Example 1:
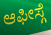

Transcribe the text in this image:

ಆಫೀಸ್ಗೆ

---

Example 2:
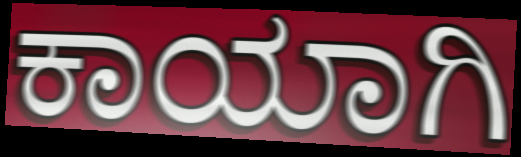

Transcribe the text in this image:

ಕಾಯಾಗಿ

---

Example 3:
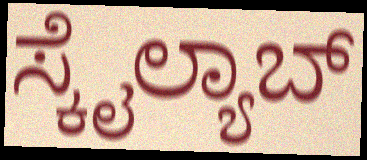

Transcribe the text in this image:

ಸ್ಕೈಲ್ಯಾಬ್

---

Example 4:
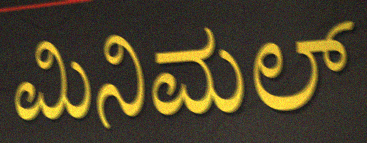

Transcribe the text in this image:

ಮಿನಿಮಲ್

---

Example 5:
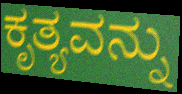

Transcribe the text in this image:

ಕೃತ್ಯವನ್ನು